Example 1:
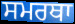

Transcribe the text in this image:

ਸਮਰਥਾ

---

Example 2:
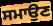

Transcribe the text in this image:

ਸਮਾਉਣ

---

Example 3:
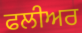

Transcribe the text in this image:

ਫਲੀਅਰ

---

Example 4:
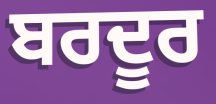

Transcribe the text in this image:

ਬਰਦੂਰ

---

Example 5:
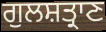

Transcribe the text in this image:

ਗੁਲਸ਼ਤ੍ਰਾਣ